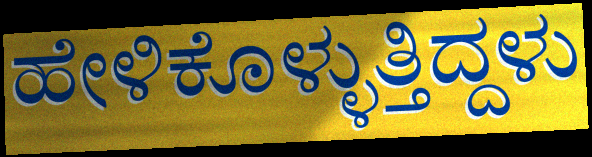
ಹೇಳಿಕೊಳ್ಳುತ್ತಿದ್ದಳು